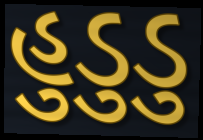
હુડુડુ